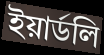
ইয়ার্ডলি